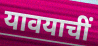
यावयाचीं